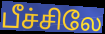
பீச்சிலே